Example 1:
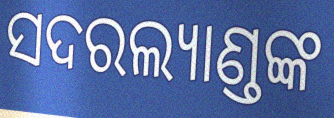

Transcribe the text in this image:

ସଦରଲ୍ୟାଣ୍ଡଙ୍କ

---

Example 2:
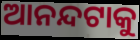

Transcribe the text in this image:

ଆନନ୍ଦଟାକୁ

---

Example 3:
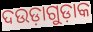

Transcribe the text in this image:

ଦଉଡ଼ାଗୁଡ଼ାକ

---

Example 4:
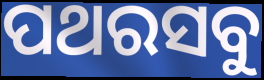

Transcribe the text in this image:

ପଥରସବୁ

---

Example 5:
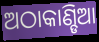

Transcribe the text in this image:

ଅଠାକାଣ୍ଡିଆ